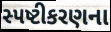
સ્પષ્ટીકરણના